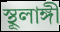
স্থূলাঙ্গী